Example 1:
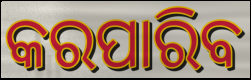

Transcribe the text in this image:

କରପାରିବ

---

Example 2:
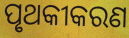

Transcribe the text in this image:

ପୃଥକୀକରଣ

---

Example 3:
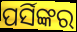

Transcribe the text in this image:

ପର୍ସିଙ୍କର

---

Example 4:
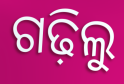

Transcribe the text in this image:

ଗଢ଼ିଲୁ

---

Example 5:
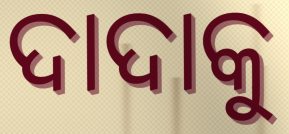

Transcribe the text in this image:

ଦାଦାକୁ